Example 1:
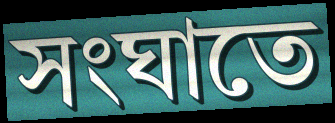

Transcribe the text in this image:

সংঘাতে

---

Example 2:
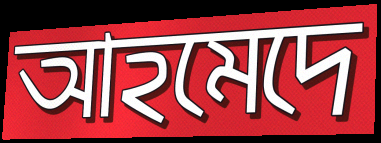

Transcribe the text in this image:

আহমেদে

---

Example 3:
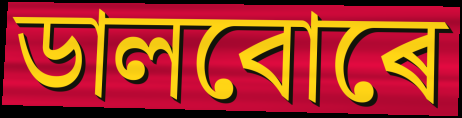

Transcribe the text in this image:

ডালবোৰে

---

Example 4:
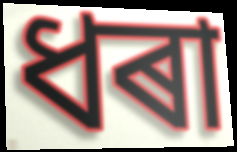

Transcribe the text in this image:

ধৰা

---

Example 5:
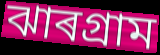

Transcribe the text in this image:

ঝাৰগ্ৰাম